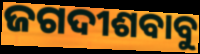
ଜଗଦୀଶବାବୁ